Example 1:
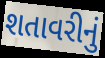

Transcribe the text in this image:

શતાવરીનું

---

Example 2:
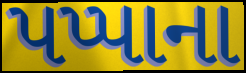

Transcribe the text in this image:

પપ્પાના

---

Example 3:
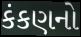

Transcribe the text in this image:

કંકણનો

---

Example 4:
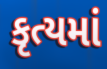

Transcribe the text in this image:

કૃત્યમાં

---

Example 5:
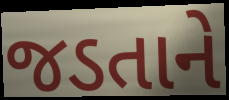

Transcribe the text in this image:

જડતાને